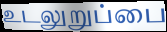
உடலுறுப்பை